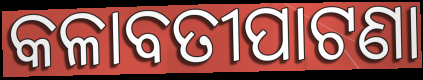
କଳାବତୀପାଟଣା